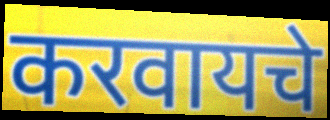
करवायचे